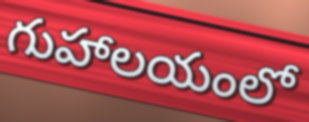
గుహాలయంలో